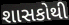
શાસકોથી